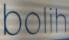
bolih